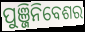
ପୁଞ୍ଜିନିବେଶର